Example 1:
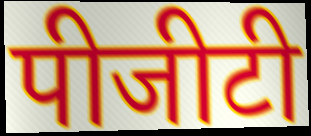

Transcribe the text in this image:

पीजीटी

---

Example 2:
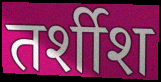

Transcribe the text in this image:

तर्शीश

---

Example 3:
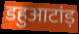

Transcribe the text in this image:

डहुआटांड़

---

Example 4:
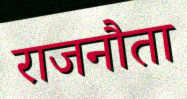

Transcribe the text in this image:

राजनौता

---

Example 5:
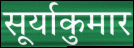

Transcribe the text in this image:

सूर्याकुमार